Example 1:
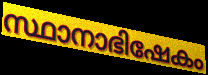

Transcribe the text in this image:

സ്ഥാനാഭിഷേകം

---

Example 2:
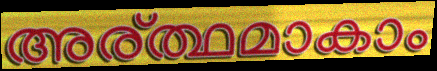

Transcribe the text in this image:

അര്ത്ഥമാകാം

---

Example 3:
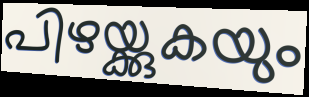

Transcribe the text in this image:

പിഴയ്ക്കുകയും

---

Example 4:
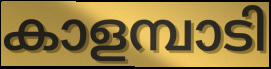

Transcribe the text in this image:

കാളമ്പാടി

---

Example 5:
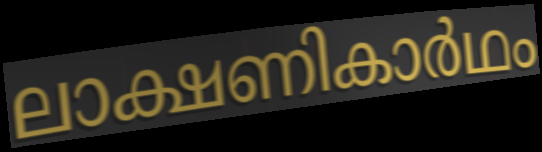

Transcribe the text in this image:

ലാക്ഷണികാർഥം